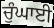
ਚੁੰਘਾਈ